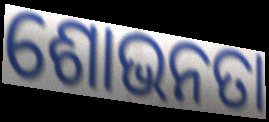
ଶୋଭନତା